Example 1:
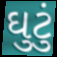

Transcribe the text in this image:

ઘુટું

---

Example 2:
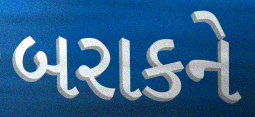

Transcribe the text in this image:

બરાકને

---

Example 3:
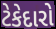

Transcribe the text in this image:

ટેકેદારો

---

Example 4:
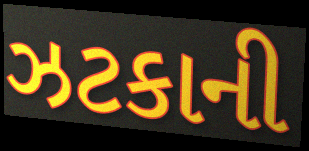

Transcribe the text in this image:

ઝટકાની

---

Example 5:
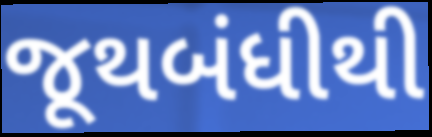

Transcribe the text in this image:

જૂથબંધીથી